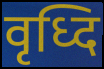
वृध्दि